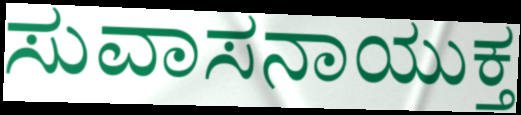
ಸುವಾಸನಾಯುಕ್ತ